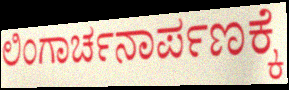
ಲಿಂಗಾರ್ಚನಾರ್ಪಣಕ್ಕೆ